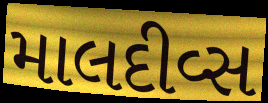
માલદીવ્સ